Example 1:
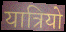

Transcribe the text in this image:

यात्रियो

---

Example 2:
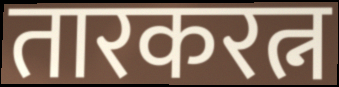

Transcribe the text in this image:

तारकरत्न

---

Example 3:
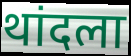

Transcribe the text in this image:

थांदला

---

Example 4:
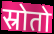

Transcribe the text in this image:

स्रोतो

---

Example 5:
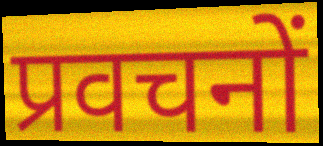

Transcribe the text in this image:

प्रवचनों